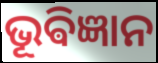
ଭୂଵିଜ୍ଞାନ